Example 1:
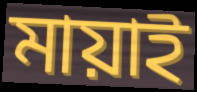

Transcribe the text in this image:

মায়াই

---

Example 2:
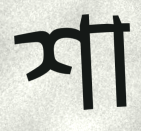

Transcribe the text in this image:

শা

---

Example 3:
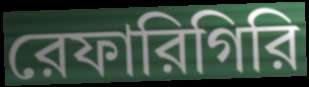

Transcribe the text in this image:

রেফারিগিরি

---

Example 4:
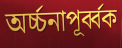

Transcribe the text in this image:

অর্চ্চনাপূর্ব্বক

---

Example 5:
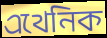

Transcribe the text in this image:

এথেনিক